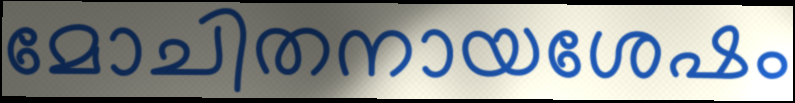
മോചിതനായശേഷം